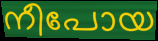
നീപോയ